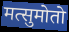
मत्सुमोतो